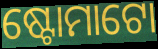
ଷ୍ଟୋମାଟୋ